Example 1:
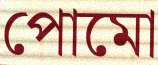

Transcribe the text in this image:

পোমো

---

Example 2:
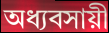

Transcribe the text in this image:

অধ্যবসায়ী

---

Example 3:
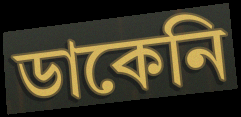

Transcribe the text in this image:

ডাকেনি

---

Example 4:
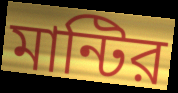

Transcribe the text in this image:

মান্টির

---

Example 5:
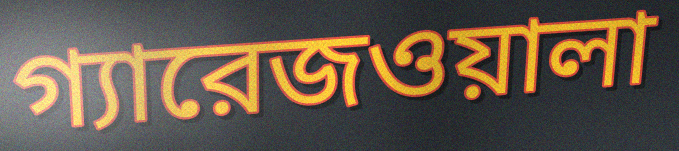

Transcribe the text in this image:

গ্যারেজওয়ালা